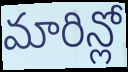
మారిన్లో